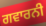
ਗਵਾਰਨੀ